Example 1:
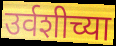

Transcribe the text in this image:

उर्वशीच्या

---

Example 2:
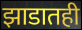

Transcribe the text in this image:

झाडातही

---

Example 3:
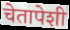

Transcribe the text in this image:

चेतापेशी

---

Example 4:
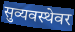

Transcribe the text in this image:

सुव्यवस्थेवर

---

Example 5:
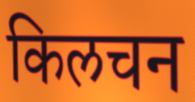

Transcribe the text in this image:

किलचन